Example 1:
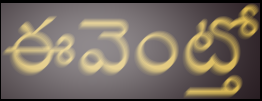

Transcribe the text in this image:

ఈవెంట్తో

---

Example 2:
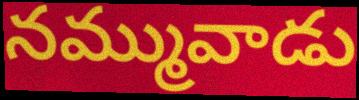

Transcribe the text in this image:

నమ్మువాడు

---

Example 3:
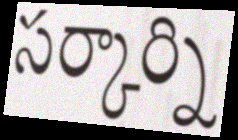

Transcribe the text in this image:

సర్కార్ని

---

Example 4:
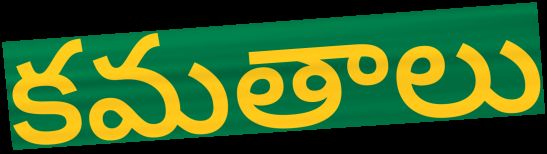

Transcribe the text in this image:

కమతాలు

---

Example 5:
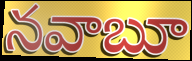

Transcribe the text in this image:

నవాబూ